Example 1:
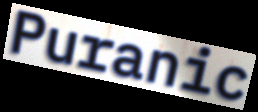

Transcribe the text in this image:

Puranic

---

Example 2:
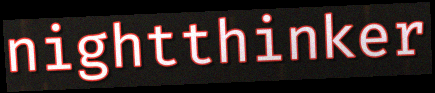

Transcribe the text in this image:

nightthinker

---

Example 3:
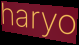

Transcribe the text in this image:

haryo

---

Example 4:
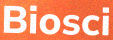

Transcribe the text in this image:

Biosci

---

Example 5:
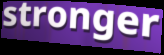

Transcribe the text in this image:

stronger